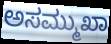
ಅಸಮ್ಮುಖಾ